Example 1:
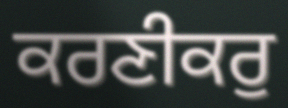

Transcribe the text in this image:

ਕਰਣੀਕਰੁ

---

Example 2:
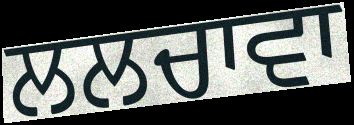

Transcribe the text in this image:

ਲਲਚਾਵਾ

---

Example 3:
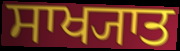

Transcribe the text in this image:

ਸਾਖ੍ਯਾਤ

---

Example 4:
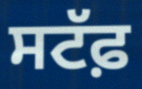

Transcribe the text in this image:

ਸਟੱਫ਼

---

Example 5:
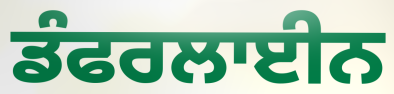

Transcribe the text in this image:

ਡੰਫਰਲਾਈਨ